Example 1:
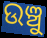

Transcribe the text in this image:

ଉଞ୍ଚୁ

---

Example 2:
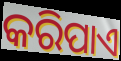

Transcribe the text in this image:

କରିପାଏ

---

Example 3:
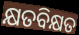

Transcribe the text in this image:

କ୍ଷତବିକ୍ଷତ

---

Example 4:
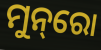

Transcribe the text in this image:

ମୁନ୍‌ରୋ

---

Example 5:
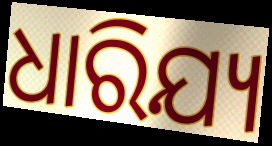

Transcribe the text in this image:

ଧାରିଯ୍ୟ